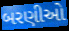
બરણીઓ